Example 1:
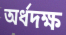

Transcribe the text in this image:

অর্ধদক্ষ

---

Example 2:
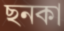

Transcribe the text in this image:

ছনকা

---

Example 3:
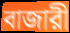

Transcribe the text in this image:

বাজারী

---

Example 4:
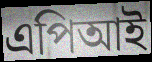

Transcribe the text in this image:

এপিআই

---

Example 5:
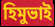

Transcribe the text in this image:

হিমুভাই